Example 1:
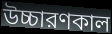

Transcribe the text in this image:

উচ্চারণকাল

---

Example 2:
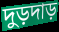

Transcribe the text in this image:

দুড়দাড়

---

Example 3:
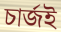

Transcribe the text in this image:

চার্জই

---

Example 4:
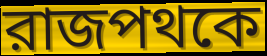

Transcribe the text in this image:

রাজপথকে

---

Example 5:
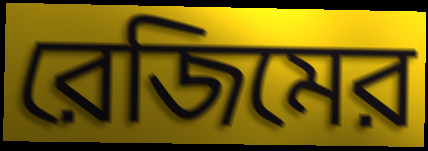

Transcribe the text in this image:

রেজিমের